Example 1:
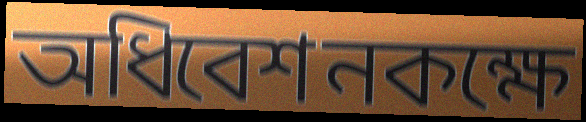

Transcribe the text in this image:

অধিবেশনকক্ষে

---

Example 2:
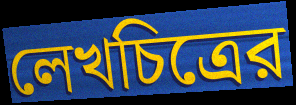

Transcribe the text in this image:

লেখচিত্রের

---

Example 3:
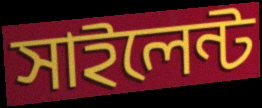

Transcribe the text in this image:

সাইলেন্ট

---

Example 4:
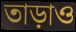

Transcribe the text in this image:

তাড়াও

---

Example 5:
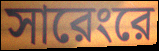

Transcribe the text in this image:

সারেংরে